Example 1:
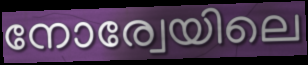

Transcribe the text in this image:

നോര്വേയിലെ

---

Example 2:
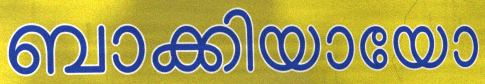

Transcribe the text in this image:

ബാക്കിയായോ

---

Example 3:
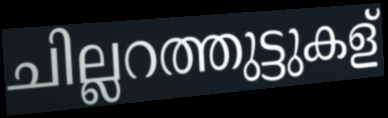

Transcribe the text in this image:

ചില്ലറത്തുട്ടുകള്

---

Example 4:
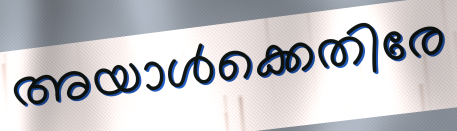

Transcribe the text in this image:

അയാൾക്കെതിരേ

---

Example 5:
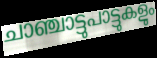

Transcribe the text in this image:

ചാഞ്ചാട്ടുപാട്ടുകളും